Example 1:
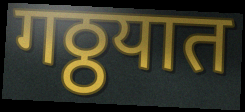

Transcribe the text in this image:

गठ्ठयात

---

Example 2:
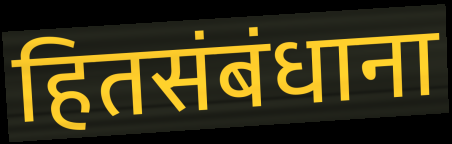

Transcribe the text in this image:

हितसंबंधाना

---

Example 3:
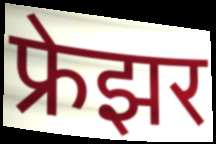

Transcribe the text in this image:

फ्रेझर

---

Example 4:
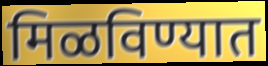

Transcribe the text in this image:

मिळविण्यात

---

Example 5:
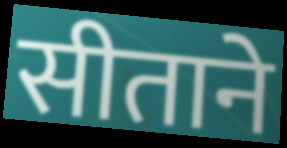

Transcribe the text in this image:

सीताने